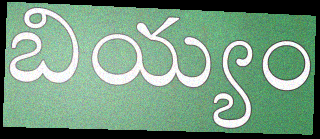
బియ్యం